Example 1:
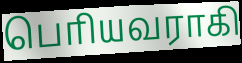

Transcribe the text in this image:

பெரியவராகி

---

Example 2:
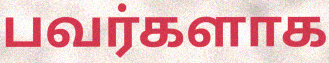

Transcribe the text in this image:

பவர்களாக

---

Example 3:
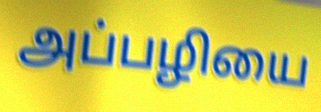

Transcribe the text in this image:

அப்பழியை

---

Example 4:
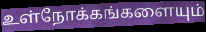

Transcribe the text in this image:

உள்நோக்கங்களையும்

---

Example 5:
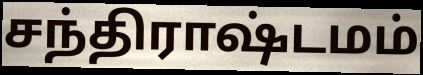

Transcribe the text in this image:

சந்திராஷ்டமம்